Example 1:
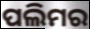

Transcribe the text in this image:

ପଲିମର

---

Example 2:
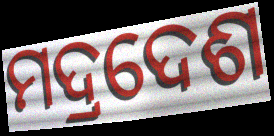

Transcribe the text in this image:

ମଦ୍ରଦେଶ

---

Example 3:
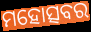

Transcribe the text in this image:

ମହୋତ୍ସବର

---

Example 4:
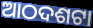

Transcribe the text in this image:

ଆଠଦଶଟା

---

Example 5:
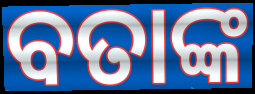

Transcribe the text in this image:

ବତାଙ୍କ